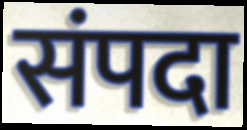
संपदा